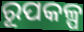
ରୂପକଳ୍ପ